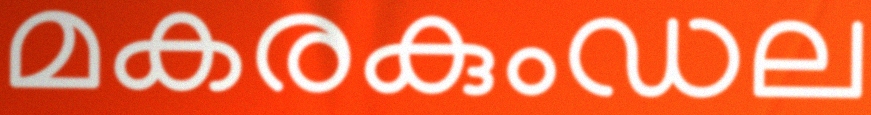
മകരകുംഡല